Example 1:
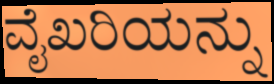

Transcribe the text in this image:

ವೈಖರಿಯನ್ನು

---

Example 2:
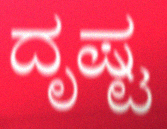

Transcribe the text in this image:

ದೃಷ್ಟ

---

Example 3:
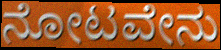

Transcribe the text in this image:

ನೋಟವೇನು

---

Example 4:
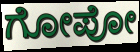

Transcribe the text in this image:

ಗೋಪೋ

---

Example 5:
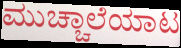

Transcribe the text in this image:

ಮುಚ್ಚಾಲೆಯಾಟ